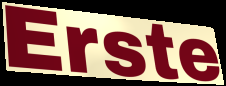
Erste